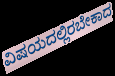
ವಿಷಯದಲ್ಲಿರಬೇಕಾದ